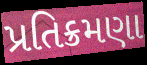
પ્રતિક્રમણા